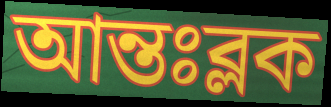
আন্তঃব্লক